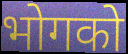
भोगको